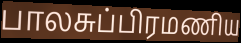
பாலசுப்பிரமணிய